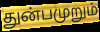
துன்பமுறும்